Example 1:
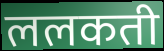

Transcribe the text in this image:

ललकती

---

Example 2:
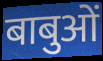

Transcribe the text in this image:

बाबुओं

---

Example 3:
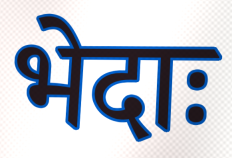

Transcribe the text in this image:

भेदाः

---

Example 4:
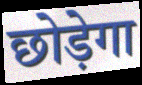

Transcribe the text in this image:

छोड़ेगा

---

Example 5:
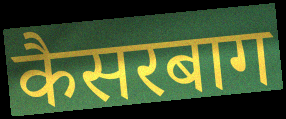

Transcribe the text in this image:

कैसरबाग